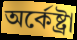
অর্কেষ্ট্রা